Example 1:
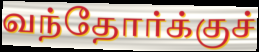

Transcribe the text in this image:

வந்தோர்க்குச்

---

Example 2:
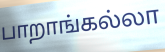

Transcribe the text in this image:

பாறாங்கல்லா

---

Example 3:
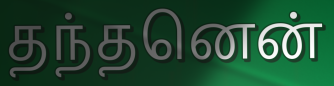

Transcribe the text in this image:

தந்தனென்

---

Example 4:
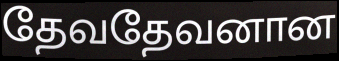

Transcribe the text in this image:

தேவதேவனான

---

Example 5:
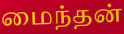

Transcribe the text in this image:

மைந்தன்